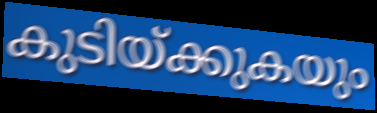
കുടിയ്ക്കുകയും